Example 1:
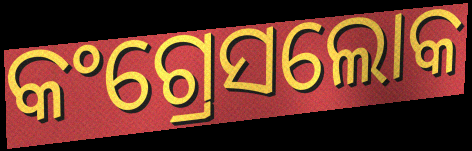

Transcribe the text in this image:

କଂଗ୍ରେସଲୋକ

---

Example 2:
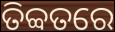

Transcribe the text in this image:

ତିବ୍ବତରେ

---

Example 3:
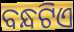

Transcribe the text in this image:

ବନ୍ଧଟିଏ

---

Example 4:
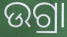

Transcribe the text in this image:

ଉଗ୍ରା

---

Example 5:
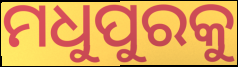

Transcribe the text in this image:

ମଧୁପୁରକୁ